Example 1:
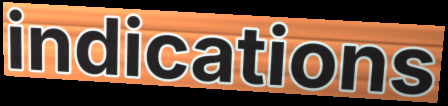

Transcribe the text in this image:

indications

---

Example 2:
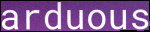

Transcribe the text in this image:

arduous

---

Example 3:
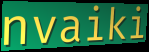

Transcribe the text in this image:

nvaiki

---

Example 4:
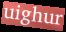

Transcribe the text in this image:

uighur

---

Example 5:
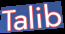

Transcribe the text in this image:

Talib